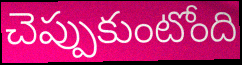
చెప్పుకుంటోంది